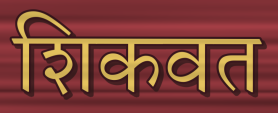
शिकवत